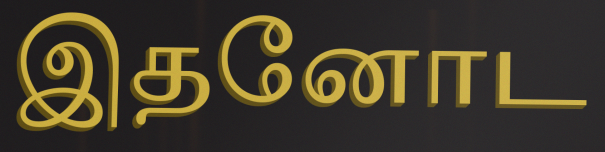
இதனோட